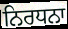
ਨਿਰਧਨਾ